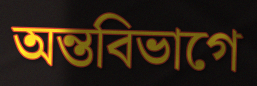
অন্তবিভাগে